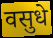
वसुधे